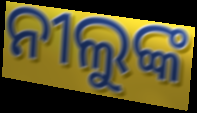
ନୀଲୁଙ୍କ